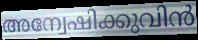
അന്വേഷിക്കുവിൻ